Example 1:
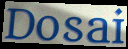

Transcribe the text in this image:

Dosai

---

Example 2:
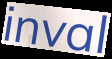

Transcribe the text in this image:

inval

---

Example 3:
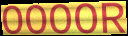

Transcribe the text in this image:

OOOOR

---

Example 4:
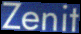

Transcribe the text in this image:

Zenit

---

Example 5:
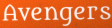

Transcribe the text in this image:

Avengers